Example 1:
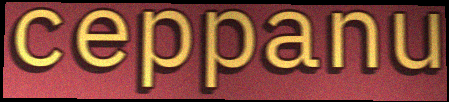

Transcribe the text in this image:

ceppanu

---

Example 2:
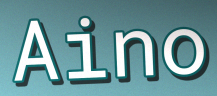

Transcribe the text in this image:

Aino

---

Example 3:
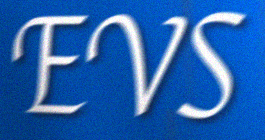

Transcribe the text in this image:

EVS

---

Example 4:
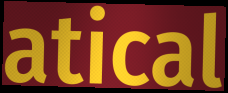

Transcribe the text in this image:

atical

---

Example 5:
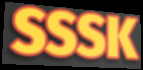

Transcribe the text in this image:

SSSK